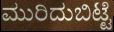
ಮುರಿದುಬಿಟ್ಟೆ